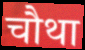
चौथा